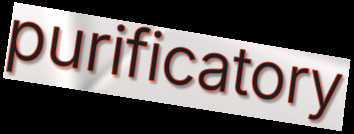
purificatory